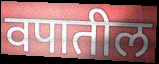
वपातील